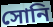
সোনি